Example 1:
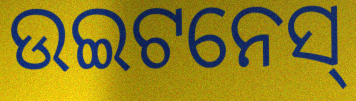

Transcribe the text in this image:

ଉଇଟନେସ୍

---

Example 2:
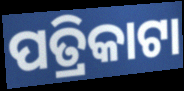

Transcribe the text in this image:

ପତ୍ରିକାଟା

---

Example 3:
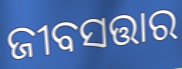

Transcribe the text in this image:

ଜୀବସତ୍ତାର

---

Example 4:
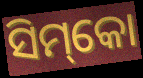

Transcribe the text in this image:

ସିମ୍‌କୋ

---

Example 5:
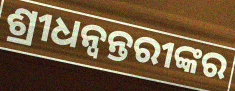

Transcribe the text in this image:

ଶ୍ରୀଧନ୍ୱନ୍ତରୀଙ୍କର